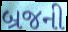
બ્રજની